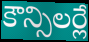
కౌన్సిలర్లే